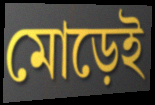
মোড়েই